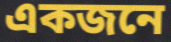
একজনে